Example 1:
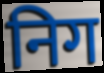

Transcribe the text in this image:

निग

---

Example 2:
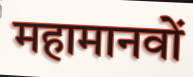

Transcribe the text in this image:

महामानवों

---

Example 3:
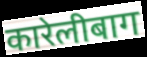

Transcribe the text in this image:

कारेलीबाग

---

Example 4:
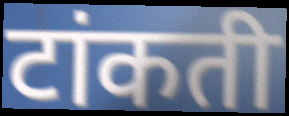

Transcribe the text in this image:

टांकती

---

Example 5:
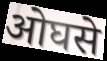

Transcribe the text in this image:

ओघसे